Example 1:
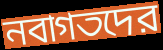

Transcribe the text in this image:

নবাগতদের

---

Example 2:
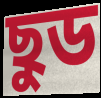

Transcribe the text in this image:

ছুড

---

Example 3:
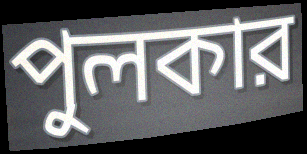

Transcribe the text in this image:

পুলকার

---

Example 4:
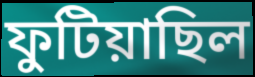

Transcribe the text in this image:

ফুটিয়াছিল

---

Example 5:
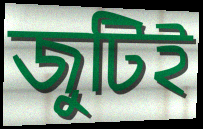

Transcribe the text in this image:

জুটিই